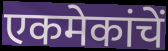
एकमेकांचें